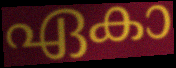
ഏകാ